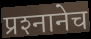
प्रश्नानेच